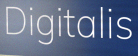
Digitalis